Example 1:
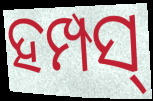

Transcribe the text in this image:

ହମ୍ପସ୍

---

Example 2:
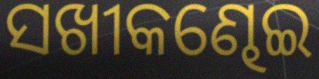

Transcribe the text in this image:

ସଖୀକଣ୍ଢେଇ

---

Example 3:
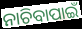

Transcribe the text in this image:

ନାଚିବାପାଇଁ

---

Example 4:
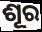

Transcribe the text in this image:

ଶୂର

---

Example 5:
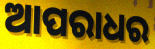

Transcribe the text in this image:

ଆପରାଧର